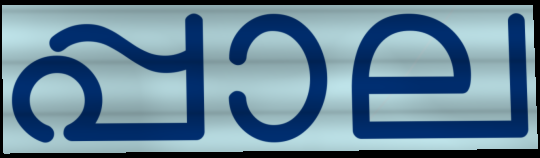
പ്പാല